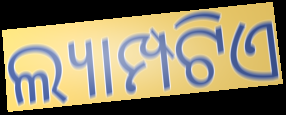
ଲ୍ୟାମ୍ପଟିଏ